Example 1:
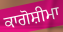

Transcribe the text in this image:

ਕਾਗੋਸ਼ੀਮਾ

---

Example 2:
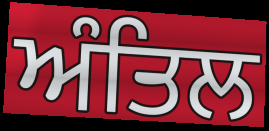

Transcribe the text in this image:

ਅੰਤਿਲ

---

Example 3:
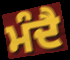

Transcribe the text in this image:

ਮੰਦੈ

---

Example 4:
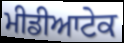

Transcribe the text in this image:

ਮੀਡੀਆਟੇਕ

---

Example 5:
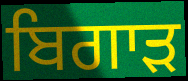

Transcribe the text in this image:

ਬਿਗਾੜ